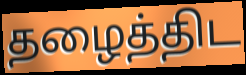
தழைத்திட